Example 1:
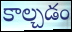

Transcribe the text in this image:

కాల్చడం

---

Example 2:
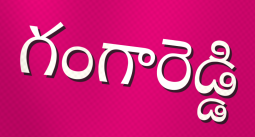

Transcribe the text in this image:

గంగారెడ్డి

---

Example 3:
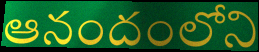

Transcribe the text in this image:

ఆనందంలోని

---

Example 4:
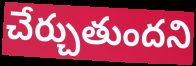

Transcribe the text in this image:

చేర్చుతుందని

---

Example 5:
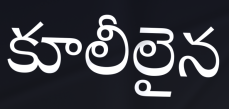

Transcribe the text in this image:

కూలీలైన